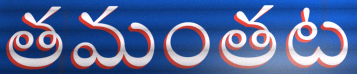
తమంతట